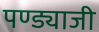
पण्ड्याजी